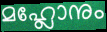
മഹ്ലോനും